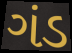
ગંડ